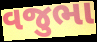
વજુભા